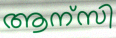
ആന്സി